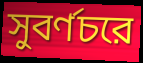
সুবর্ণচরে